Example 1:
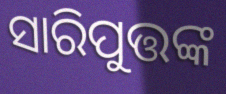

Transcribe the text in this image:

ସାରିପୁତ୍ତଙ୍କ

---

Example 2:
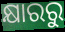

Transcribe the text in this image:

କ୍ଷାରରୁ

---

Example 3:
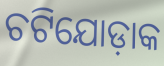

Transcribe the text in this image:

ଚଟିଯୋଡ଼ାକ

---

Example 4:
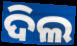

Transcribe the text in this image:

ଦିଲ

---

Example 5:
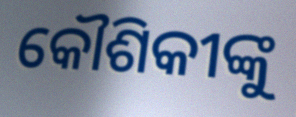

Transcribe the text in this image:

କୌଶିକୀଙ୍କୁ